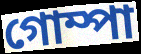
গোম্পা